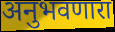
अनुभवणारा